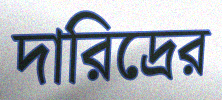
দারিদ্রের